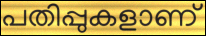
പതിപ്പുകളാണ്